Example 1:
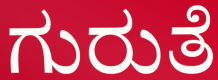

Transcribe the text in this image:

ಗುರುತೆ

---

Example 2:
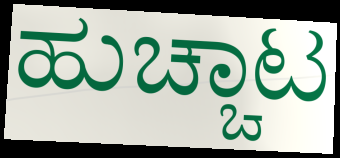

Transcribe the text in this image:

ಹುಚ್ಚಾಟ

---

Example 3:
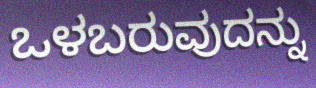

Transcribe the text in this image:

ಒಳಬರುವುದನ್ನು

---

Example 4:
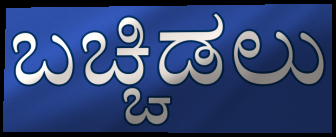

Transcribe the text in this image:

ಬಚ್ಚಿಡಲು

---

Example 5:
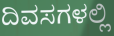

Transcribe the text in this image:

ದಿವಸಗಳಲ್ಲಿ